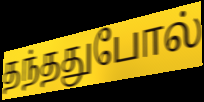
தந்ததுபோல்